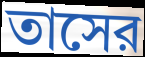
তাসের